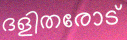
ദളിതരോട്